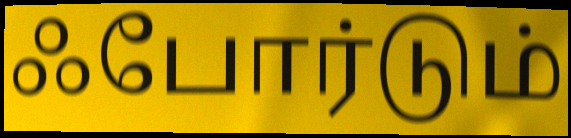
ஃபோர்டும்